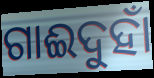
ଗାଈଦୁହାଁ